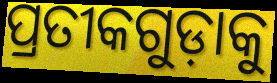
ପ୍ରତୀକଗୁଡ଼ାକୁ